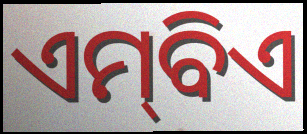
ଏମ୍‌ବିଏ